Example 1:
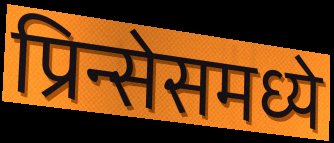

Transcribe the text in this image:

प्रिन्सेसमध्ये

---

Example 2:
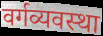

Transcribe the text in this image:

वर्गव्यवस्था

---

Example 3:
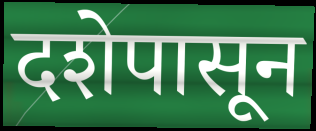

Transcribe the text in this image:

दशेपासून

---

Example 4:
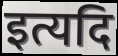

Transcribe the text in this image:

इत्यदि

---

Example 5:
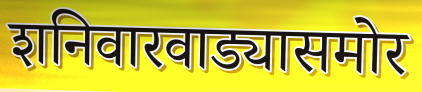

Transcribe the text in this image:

शनिवारवाड्यासमोर